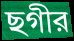
ছগীর